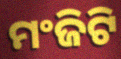
ମଂଜିଟି